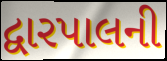
દ્વારપાલની